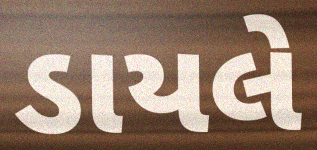
ડાયલે